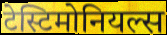
टेस्टिमोनियल्स